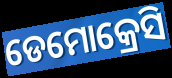
ଡେମୋକ୍ରେସି